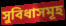
সুবিধাসমূহ